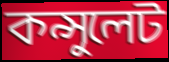
কন্সুলেট